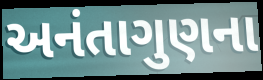
અનંતાગુણના